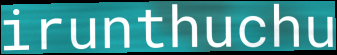
irunthuchu